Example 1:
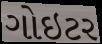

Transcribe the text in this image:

ગોઇટર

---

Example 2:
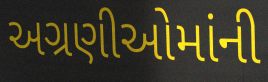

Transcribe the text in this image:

અગ્રણીઓમાંની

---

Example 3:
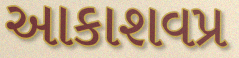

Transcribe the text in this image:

આકાશવપ્ર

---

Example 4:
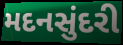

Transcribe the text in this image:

મદનસુંદરી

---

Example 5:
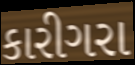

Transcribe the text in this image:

કારીગરા